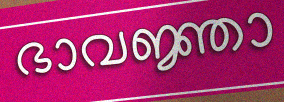
ഭാവജ്ഞാ